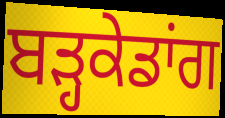
ਬੜ੍ਹਕੇਡਾਂਗ